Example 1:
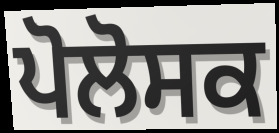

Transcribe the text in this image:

ਪੋਲੋਸਕ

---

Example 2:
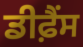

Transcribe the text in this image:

ਡੀਫ਼ੈਂਸ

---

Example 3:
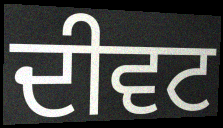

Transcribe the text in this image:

ਦੀਵਟ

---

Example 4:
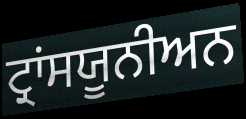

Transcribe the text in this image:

ਟ੍ਰਾਂਸਯੂਨੀਅਨ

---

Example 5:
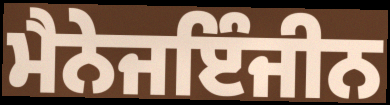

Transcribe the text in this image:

ਮੈਨੇਜਇੰਜੀਨ